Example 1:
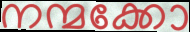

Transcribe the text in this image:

നന്മക്കോ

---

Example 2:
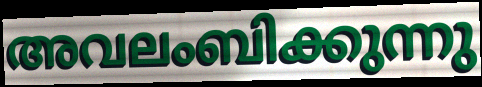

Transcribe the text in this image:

അവലംബിക്കുന്നു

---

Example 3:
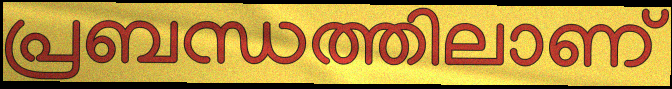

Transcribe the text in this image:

പ്രബന്ധത്തിലാണ്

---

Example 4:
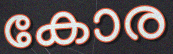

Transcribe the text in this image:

കോര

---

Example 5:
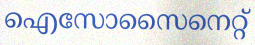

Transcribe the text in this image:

ഐസോസൈനെറ്റ്